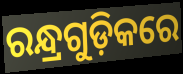
ରନ୍ଧ୍ରଗୁଡ଼ିକରେ